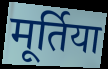
मूर्तिया